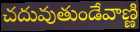
చదువుతుండేవాణ్ణి